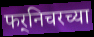
फर्निचरच्या